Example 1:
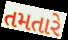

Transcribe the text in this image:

તમતારે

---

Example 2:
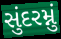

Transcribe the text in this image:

સુંદરમ્નું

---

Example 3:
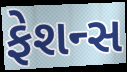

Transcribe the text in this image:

ફેશન્સ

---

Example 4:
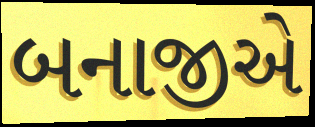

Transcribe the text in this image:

બનાજીએ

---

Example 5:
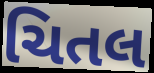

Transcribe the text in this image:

ચિતલ